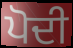
ਪੋਦੀ